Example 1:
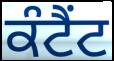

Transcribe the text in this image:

ਕੰਟੈਂਟ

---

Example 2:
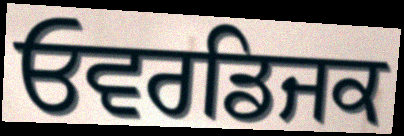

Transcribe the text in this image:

ਓਵਰਡਿਜਕ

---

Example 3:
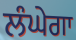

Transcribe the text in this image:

ਲੰਘੇਗਾ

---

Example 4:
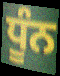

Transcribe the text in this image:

ਧੂੰਨ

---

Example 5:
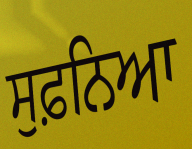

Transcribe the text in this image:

ਸੁਫ਼ਨਿਆ